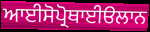
ਆਈਸੋਪ੍ਰੋਥਾਈੳਲਾਨ